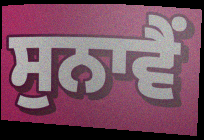
ਸੁਨਾਵੈਂ